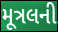
મૂત્રલની